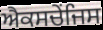
ਐਕਸਚੇਂਜਿਸ